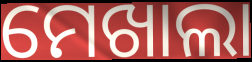
ମେଖାଲା